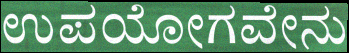
ಉಪಯೋಗವೇನು